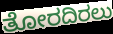
ತೋರದಿರಲು